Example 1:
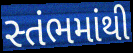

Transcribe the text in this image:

સ્તંભમાંથી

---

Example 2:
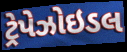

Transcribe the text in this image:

ટ્રેપેઝોઇડલ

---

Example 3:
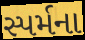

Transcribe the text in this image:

સ્પર્મના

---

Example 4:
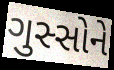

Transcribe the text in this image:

ગુસ્સોને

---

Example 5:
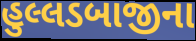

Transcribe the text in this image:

હુલ્લડબાજીના